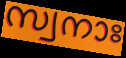
സ്വനാഃ